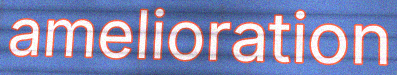
amelioration